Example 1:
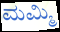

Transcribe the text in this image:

ಮಮ್ಮಿ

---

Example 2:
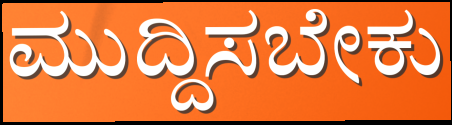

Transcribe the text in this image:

ಮುದ್ದಿಸಬೇಕು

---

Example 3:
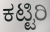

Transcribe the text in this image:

ಕಟ್ಟಿರಿ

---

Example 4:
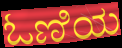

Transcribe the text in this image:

ಓಣಿಯ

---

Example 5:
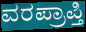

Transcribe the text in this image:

ವರಪ್ರಾಪ್ತಿ